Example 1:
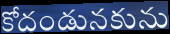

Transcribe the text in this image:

కోదండునకును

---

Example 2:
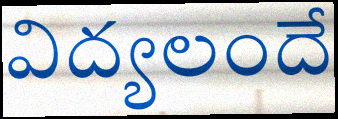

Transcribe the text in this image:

విద్యలందే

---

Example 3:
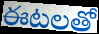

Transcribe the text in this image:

ఈటలతో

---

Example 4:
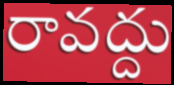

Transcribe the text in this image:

రావద్దు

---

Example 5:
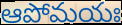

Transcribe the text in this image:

ఆపోమయః